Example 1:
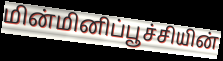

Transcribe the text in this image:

மின்மினிப்பூச்சியின்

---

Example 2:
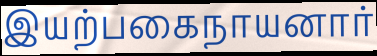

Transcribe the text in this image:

இயற்பகைநாயனார்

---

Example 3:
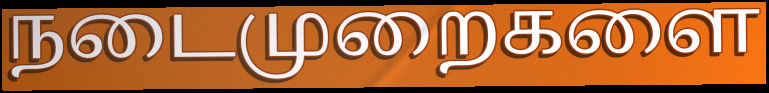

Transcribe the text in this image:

நடைமுறைகளை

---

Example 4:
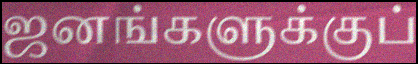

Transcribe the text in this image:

ஜனங்களுக்குப்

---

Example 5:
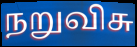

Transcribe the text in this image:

நறுவிசு